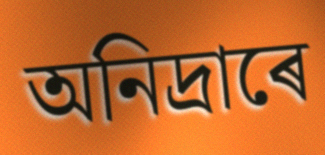
অনিদ্ৰাৰে